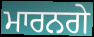
ਮਾਰਨਗੇ